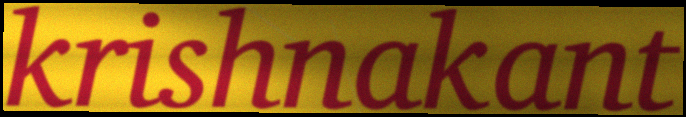
krishnakant